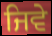
ਜਿਵੇ